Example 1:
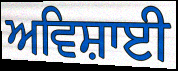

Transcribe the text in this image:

ਅਵਿਸ਼ਾਈ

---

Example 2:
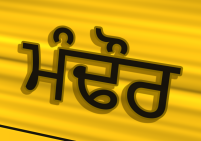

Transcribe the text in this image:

ਮੰਢੌਰ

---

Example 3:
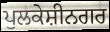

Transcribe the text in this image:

ਪੁਲਕੇਸ਼ੀਨਗਰ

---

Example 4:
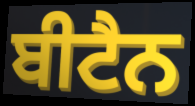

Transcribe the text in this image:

ਬੀਟੈਨ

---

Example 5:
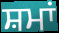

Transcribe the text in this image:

ਸ਼ਮਾਂ